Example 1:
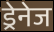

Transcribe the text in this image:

ड्रेनेज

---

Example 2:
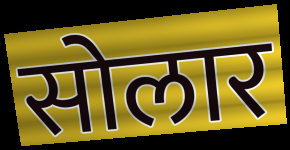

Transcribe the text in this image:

सोलार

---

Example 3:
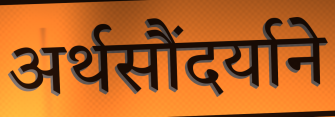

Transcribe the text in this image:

अर्थसौंदर्याने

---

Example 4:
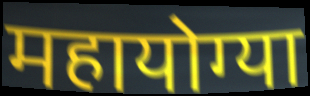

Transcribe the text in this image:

महायोग्या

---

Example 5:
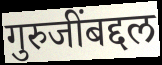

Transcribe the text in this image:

गुरुजींबद्दल